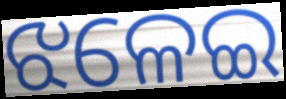
ଝଳେଇ